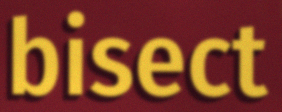
bisect